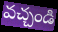
వచ్చండి